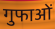
गुफाओं